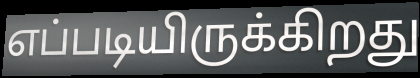
எப்படியிருக்கிறது